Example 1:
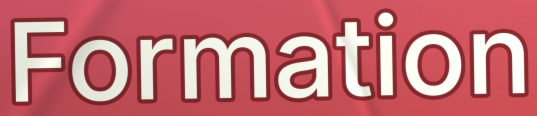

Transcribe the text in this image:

Formation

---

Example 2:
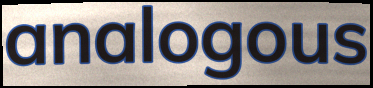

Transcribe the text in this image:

analogous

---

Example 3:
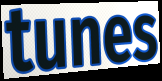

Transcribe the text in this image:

tunes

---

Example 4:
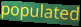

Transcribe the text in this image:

populated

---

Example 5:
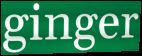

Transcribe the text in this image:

ginger